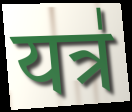
यत्र॑